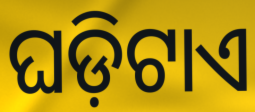
ଘଡ଼ିଟାଏ